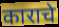
काराचे